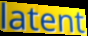
latent